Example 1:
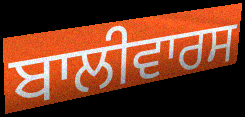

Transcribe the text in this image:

ਬਾਲੀਵਾਰਸ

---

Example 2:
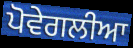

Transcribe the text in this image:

ਪੋਵੇਗਲੀਆ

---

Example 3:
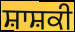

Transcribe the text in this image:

ਸ਼ਾਸ਼ਕੀ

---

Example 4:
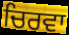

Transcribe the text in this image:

ਚਿਰਵਾ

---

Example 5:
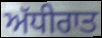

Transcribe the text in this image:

ਅੱਧੀਰਾਤ